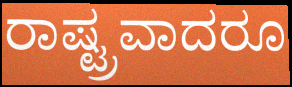
ರಾಷ್ಟ್ರವಾದರೂ